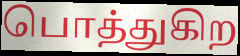
பொத்துகிற